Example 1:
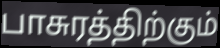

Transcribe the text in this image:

பாசுரத்திற்கும்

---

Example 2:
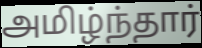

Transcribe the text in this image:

அமிழ்ந்தார்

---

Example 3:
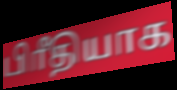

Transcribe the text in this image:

பிரீதியாக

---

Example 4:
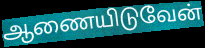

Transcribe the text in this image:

ஆணையிடுவேன்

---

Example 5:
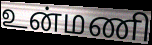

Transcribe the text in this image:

உன்மணி